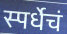
स्पर्धेचं